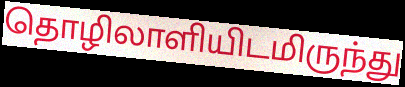
தொழிலாளியிடமிருந்து